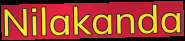
Nilakanda